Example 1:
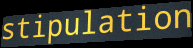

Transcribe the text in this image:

stipulation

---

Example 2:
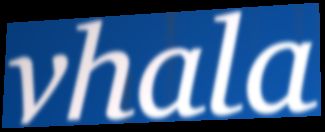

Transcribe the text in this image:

vhala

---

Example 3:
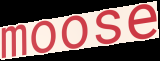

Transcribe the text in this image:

moose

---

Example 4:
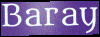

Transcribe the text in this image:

Baray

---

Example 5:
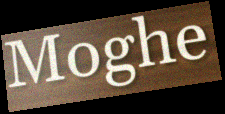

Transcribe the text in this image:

Moghe